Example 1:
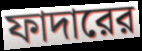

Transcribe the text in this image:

ফাদারের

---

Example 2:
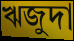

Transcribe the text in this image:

ঋজুদা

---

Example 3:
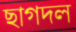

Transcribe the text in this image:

ছাগদল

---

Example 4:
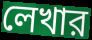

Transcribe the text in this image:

লেখার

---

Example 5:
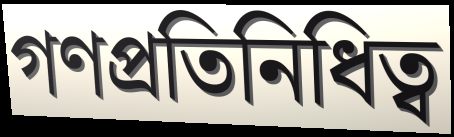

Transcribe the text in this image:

গণপ্রতিনিধিত্ব